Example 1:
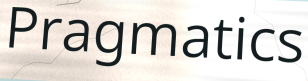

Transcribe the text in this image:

Pragmatics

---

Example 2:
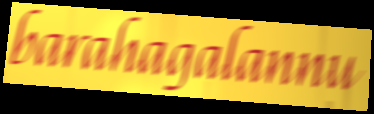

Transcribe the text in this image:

barahagalannu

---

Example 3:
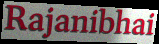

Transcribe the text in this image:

Rajanibhai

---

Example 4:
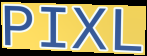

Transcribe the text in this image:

PIXL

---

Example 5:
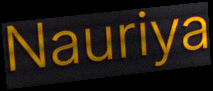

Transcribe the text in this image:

Nauriya